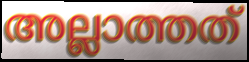
അല്ലാത്തത്